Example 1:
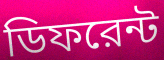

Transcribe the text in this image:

ডিফরেন্ট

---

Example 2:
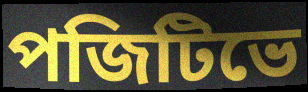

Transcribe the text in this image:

পজিটিভে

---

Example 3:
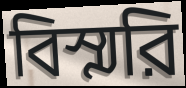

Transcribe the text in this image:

বিস্মরি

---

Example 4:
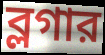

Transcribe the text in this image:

ব্লগার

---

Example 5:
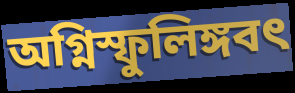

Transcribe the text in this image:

অগ্নিস্ফুলিঙ্গবৎ